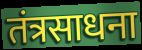
तंत्रसाधना